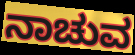
ನಾಚುವ